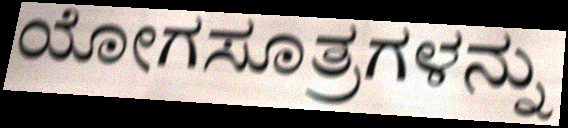
ಯೋಗಸೂತ್ರಗಳನ್ನು